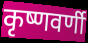
कृष्णवर्णी